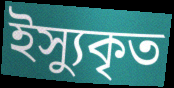
ইস্যুকৃত